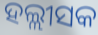
ହଲ୍ଲୀସକ